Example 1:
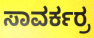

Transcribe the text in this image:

ಸಾವರ್ಕರ್ರ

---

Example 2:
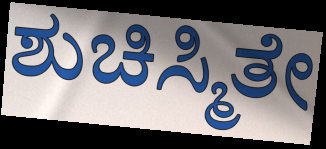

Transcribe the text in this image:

ಶುಚಿಸ್ಮಿತೇ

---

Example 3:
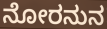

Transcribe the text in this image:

ನೋರನುನ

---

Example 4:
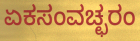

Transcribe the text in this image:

ಏಕಸಂವಚ್ಛರಂ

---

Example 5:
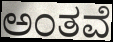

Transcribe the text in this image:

ಅಂತವೆ